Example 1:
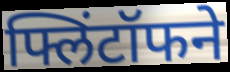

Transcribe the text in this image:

फ्लिंटॉफने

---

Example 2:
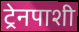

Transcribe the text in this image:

ट्रेनपाशी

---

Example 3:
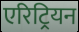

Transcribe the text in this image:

एरिट्रियन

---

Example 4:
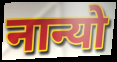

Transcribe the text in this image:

नान्यो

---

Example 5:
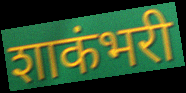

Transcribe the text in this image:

शाकंभरी